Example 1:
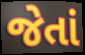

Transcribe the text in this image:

જેતાં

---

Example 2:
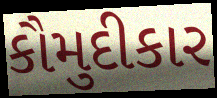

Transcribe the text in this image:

કૌમુદીકાર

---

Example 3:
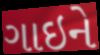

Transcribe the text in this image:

ગાઇને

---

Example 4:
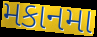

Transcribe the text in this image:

મકાનમા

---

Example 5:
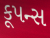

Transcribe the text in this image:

કૂપન્સ